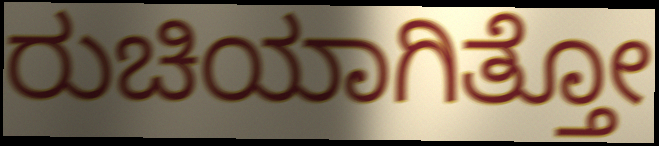
ರುಚಿಯಾಗಿತ್ತೋ